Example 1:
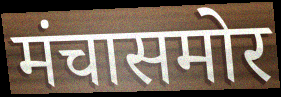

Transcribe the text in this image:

मंचासमोर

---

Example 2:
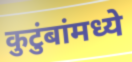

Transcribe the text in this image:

कुटुंबांमध्ये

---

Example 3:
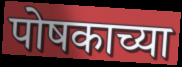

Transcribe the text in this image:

पोषकाच्या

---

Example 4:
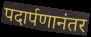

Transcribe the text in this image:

पदार्पणानंतर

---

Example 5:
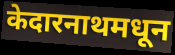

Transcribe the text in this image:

केदारनाथमधून